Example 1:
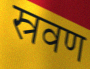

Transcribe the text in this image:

स्रवण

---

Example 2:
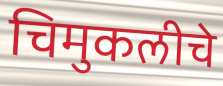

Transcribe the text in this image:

चिमुकलीचे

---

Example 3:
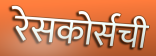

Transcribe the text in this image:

रेसकोर्सची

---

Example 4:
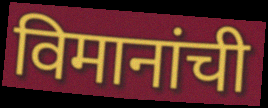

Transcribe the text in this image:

विमानांची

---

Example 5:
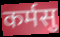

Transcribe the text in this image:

कर्मसु